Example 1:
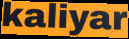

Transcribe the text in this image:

kaliyar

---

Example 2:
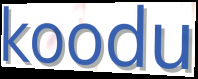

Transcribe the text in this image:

koodu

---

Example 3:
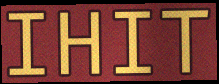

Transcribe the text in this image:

IHIT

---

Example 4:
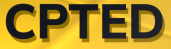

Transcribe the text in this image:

CPTED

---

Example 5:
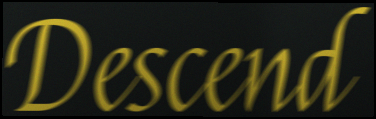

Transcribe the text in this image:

Descend